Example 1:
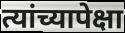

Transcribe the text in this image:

त्यांच्यापेक्षा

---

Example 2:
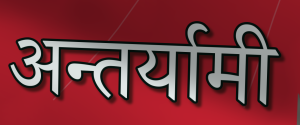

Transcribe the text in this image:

अन्तर्यामी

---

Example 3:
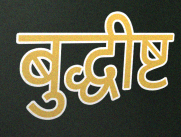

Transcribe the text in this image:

बुद्धीष्ट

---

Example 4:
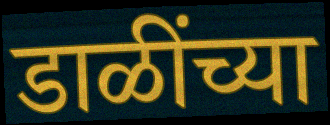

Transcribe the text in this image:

डाळींच्या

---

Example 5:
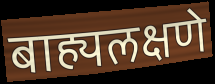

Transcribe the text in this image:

बाह्यलक्षणे